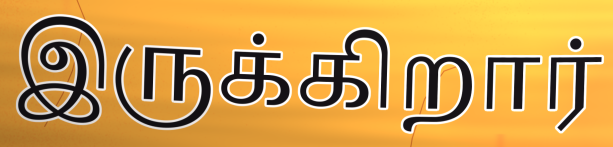
இருக்கிறார்